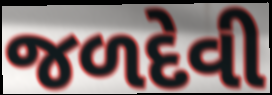
જળદેવી